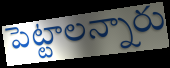
పెట్టాలన్నారు